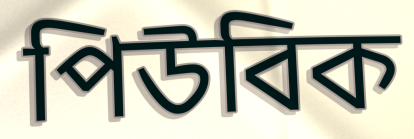
পিউবিক